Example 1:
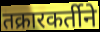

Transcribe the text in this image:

तक्रारकर्तीने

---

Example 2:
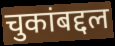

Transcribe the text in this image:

चुकांबद्दल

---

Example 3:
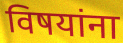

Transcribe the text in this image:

विषयांना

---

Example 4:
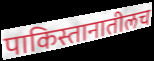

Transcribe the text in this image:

पाकिस्तानातीलच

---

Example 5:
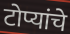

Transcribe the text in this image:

टोप्यांचे